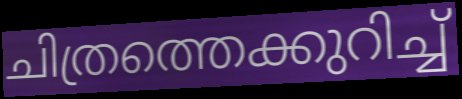
ചിത്രത്തെക്കുറിച്ച്